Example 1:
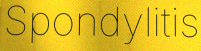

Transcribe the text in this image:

Spondylitis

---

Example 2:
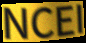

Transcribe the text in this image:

NCEI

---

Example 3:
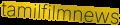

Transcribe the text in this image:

tamilfilmnews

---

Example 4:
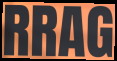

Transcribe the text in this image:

RRAG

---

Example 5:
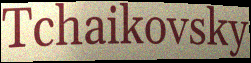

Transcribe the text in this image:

Tchaikovsky